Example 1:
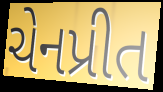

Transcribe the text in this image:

ચેનપ્રીત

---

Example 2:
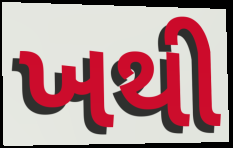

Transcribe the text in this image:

ખથી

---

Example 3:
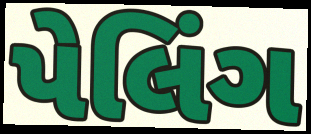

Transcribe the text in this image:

પેલિંગ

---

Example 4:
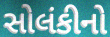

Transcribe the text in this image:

સોલંકીનો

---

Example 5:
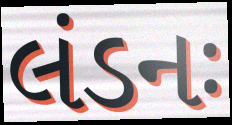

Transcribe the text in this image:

લંડનઃ